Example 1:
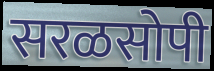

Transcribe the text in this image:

सरळसोपी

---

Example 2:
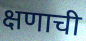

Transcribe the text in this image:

क्षणाची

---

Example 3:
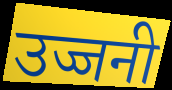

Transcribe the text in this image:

उज्जनी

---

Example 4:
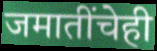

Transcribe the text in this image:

जमातींचेही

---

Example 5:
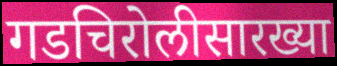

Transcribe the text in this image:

गडचिरोलीसारख्या